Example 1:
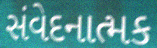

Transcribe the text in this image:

સંવેદનાત્મક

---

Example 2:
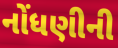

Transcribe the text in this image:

નોંધણીની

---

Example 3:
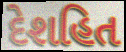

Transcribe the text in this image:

દેશહિત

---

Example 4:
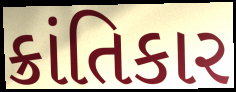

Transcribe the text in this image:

ક્રાંતિકાર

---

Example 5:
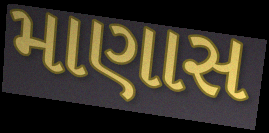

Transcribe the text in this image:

માણાસ